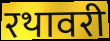
रथावरी